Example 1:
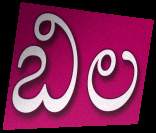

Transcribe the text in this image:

బిల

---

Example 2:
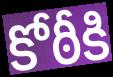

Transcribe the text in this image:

కోఠీకి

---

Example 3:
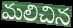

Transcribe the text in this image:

మలిచిన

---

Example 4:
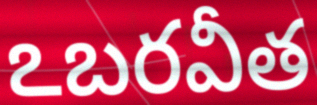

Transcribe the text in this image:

ఽబరవీత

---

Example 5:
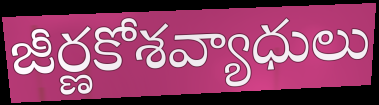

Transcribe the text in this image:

జీర్ణకోశవ్యాధులు